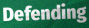
Defending